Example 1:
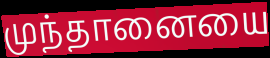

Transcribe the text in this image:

முந்தானையை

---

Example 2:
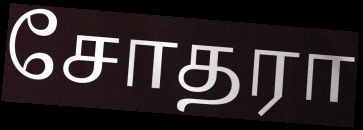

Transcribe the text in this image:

சோதரா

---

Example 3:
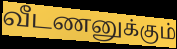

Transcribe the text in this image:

வீடணனுக்கும்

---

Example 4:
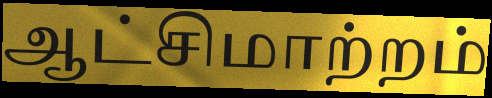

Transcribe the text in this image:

ஆட்சிமாற்றம்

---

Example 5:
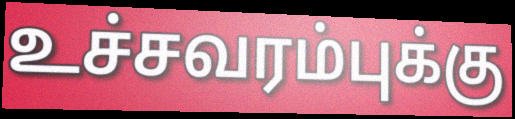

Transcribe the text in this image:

உச்சவரம்புக்கு